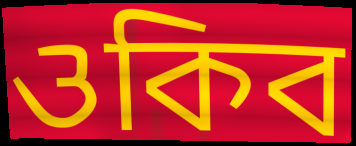
ওকিব